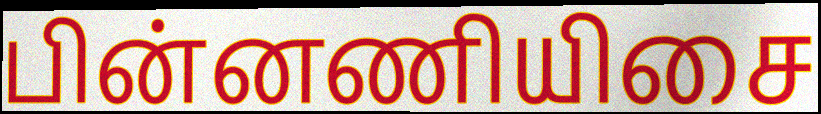
பின்னணியிசை